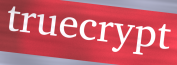
truecrypt